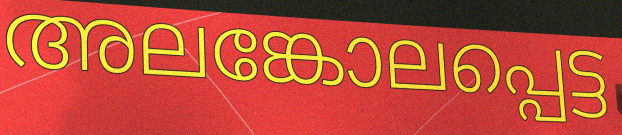
അലങ്കോലപ്പെട്ട